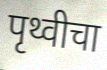
पृथ्वीचा